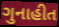
ગુનાહીત